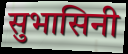
सुभासिनी